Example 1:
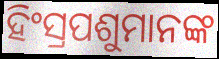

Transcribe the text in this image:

ହିଂସ୍ରପଶୁମାନଙ୍କ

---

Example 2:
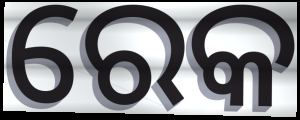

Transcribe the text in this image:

ରେକ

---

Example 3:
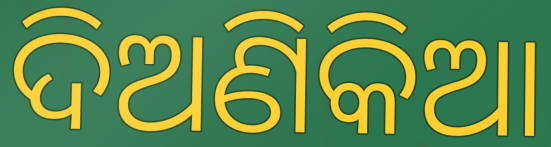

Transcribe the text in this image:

ଦିଅଣିକିଆ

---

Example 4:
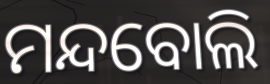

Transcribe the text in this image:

ମନ୍ଦବୋଲି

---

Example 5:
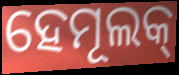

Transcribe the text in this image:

ହେମୂଲକ୍